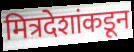
मित्रदेशांकडून